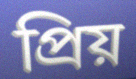
প্রিয়